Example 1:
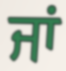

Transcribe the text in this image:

ਜਾਂ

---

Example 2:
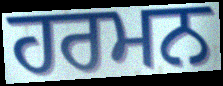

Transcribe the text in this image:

ਹਰਮਨ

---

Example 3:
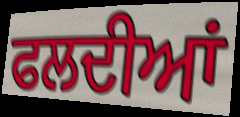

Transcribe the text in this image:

ਫਲਦੀਆਂ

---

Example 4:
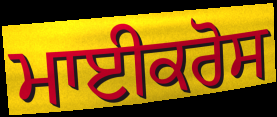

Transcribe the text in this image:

ਮਾਈਕਰੋਸ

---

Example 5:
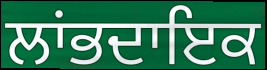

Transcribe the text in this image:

ਲਾਂਭਦਾਇਕ